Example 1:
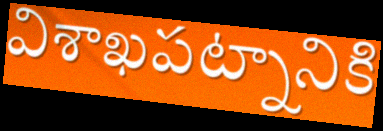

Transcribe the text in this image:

విశాఖపట్నానికి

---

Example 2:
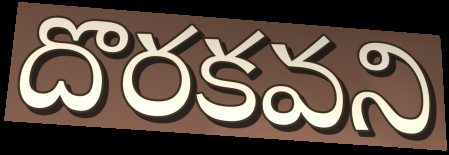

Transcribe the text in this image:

దొరకవని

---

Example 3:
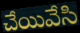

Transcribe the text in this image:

చేయివేసి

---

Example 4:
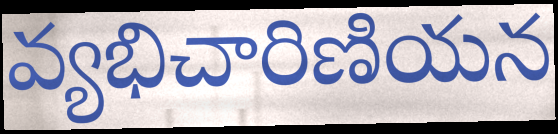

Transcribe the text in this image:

వ్యభిచారిణియన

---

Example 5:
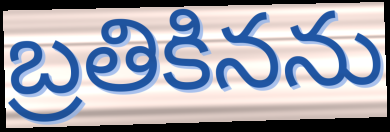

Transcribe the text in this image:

బ్రతికినను